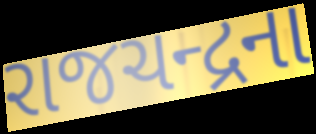
રાજચન્દ્રના